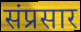
संप्रसार